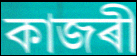
কাজৰী